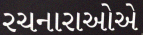
રચનારાઓએ